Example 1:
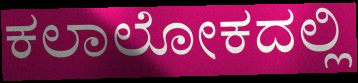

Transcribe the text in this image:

ಕಲಾಲೋಕದಲ್ಲಿ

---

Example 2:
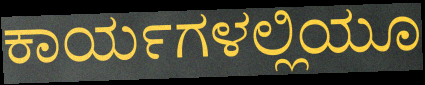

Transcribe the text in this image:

ಕಾರ್ಯಗಳಲ್ಲಿಯೂ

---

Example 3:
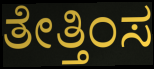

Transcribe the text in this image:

ತೇತ್ತಿಂಸ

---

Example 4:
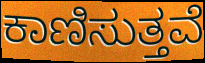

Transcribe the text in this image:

ಕಾಣಿಸುತ್ತವೆ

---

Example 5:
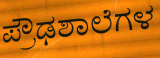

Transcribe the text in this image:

ಪ್ರೌಢಶಾಲೆಗಳ